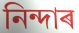
নিন্দাৰ